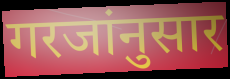
गरजांनुसार